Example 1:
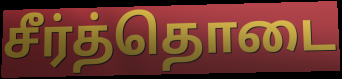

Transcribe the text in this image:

சீர்த்தொடை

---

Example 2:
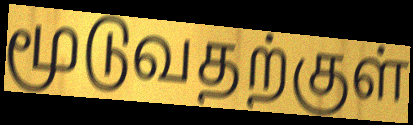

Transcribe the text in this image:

மூடுவதற்குள்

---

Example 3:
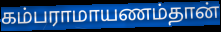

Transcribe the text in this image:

கம்பராமாயணம்தான்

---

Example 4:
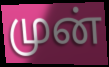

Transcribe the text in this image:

முன்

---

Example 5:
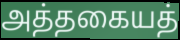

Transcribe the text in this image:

அத்தகையத்